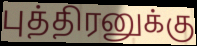
புத்திரனுக்கு